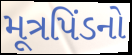
મૂત્રપિંડનો